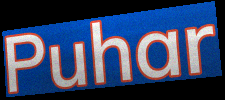
Puhar